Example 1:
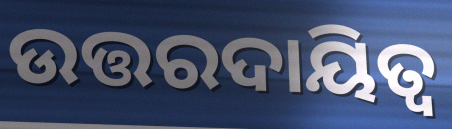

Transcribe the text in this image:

ଉତ୍ତରଦାୟିତ୍ବ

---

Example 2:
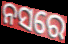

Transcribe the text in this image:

ନସରେ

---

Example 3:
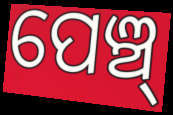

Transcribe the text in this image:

ପେଞ୍ଚ୍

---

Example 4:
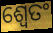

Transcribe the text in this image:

ଶ୍ଵେତଂ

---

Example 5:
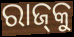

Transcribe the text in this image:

ରାଜ୍‍କୁ